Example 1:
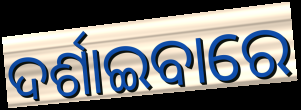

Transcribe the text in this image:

ଦର୍ଶାଇବାରେ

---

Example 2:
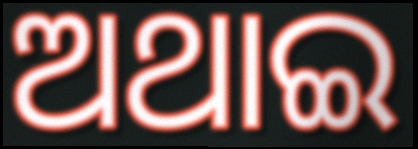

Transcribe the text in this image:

ଅଥାଇ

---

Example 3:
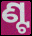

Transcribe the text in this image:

ଣ୍ଟ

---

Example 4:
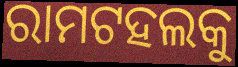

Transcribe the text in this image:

ରାମଟହଲକୁ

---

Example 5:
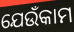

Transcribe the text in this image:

ଯେଉଁକାମ